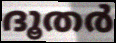
ദൂതർ